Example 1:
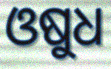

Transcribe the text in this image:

ଓଷୁଧ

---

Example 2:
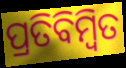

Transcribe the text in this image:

ପ୍ରତିବିମ୍ବିତ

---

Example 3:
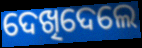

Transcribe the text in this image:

ଦେଖିଦେଲେ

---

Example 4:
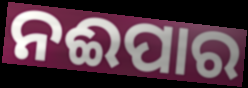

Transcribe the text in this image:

ନଈପାର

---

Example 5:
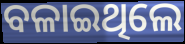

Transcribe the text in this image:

ବଳାଇଥିଲେ